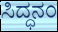
ಸಿದ್ಧನಂ